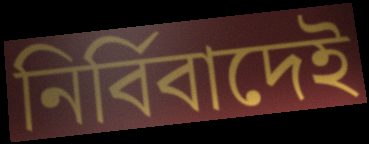
নির্বিবাদেই